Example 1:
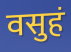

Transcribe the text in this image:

वसुहं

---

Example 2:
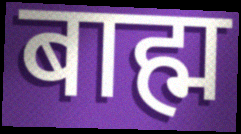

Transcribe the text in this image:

बाह्म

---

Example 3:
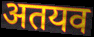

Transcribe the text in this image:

अतयव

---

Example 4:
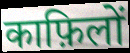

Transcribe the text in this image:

काफ़िलों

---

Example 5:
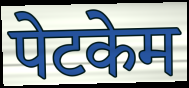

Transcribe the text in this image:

पेटकेम